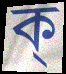
ক্